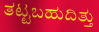
ತಟ್ಟಬಹುದಿತ್ತು